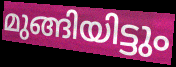
മുങ്ങിയിട്ടും